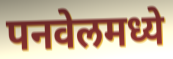
पनवेलमध्ये